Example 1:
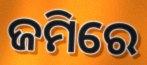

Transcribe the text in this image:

ଜମିରେ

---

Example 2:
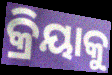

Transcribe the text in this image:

କ୍ରିୟାକୁ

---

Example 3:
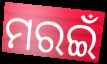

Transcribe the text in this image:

ମରଇଁ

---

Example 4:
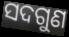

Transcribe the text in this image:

ସଦଗୁଣ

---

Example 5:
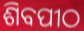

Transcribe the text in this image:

ଶିବପୀଠ